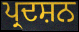
ਪ੍ਰਦਸ਼ਨ